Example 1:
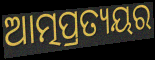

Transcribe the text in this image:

ଆତ୍ମପ୍ରତ୍ୟୟର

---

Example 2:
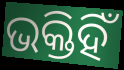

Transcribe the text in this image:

ଭକ୍ତିହିଁ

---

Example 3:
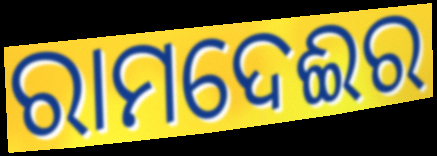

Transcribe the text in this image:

ରାମଦେଈର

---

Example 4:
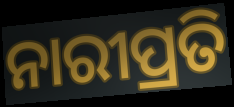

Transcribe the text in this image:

ନାରୀପ୍ରତି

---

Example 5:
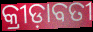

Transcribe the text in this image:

କ୍ରୀଡ଼ାବତୀ